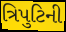
ત્રિપુટિની